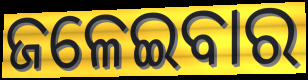
ଜଳେଇବାର